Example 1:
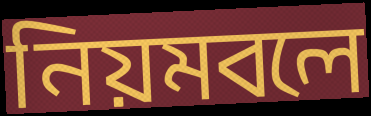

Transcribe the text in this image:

নিয়মবলে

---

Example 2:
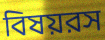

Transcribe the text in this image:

বিষয়রস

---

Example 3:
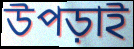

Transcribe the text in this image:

উপড়াই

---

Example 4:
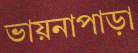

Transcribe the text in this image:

ভায়নাপাড়া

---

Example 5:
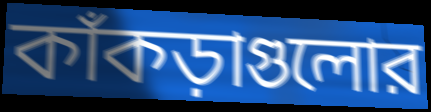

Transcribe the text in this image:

কাঁকড়াগুলোর